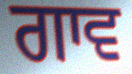
ਗਾਵ